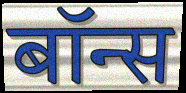
बॉन्स